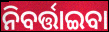
ନିବର୍ତ୍ତାଇବା